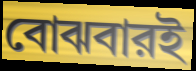
বোঝবারই